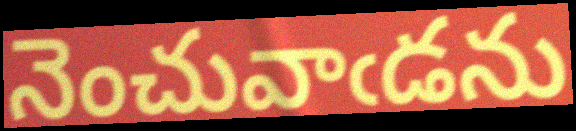
నెంచువాఁడను